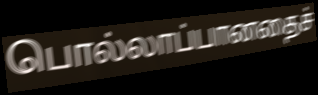
பொல்லாப்பானதைச்